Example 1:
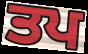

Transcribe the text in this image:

ਤਪ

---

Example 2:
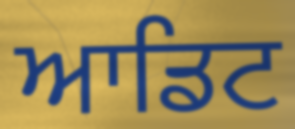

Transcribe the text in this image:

ਆਡਿਟ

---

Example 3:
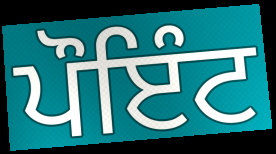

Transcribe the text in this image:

ਪੌਇੰਟ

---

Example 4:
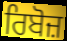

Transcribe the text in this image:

ਰਿਬੋਜ਼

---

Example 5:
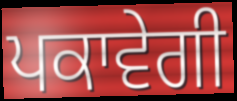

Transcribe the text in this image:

ਪਕਾਵੇਗੀ